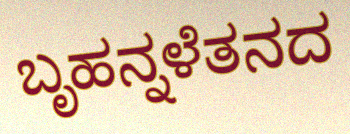
ಬೃಹನ್ನಳೆತನದ